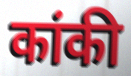
कांकी